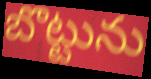
బొట్టును